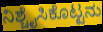
ನಿಶ್ಚೈಸಿಕೊಟ್ಟನು